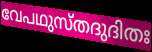
വേപഥുസ്തദുദിതഃ